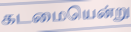
கடமையென்று